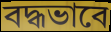
বদ্ধভাবে